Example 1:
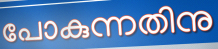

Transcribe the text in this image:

പോകുന്നതിനു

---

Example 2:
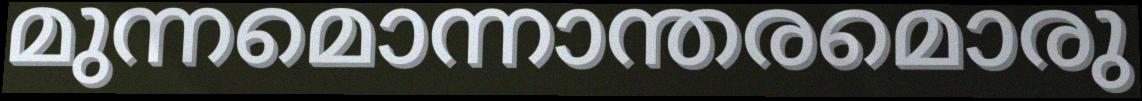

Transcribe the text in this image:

മുന്നമൊന്നാന്തരമൊരു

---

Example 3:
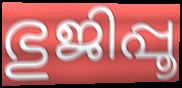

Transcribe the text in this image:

ഭുജിപ്പൂ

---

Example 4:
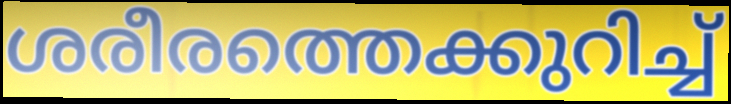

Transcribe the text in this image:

ശരീരത്തെക്കുറിച്ച്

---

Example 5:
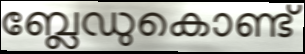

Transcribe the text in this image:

ബ്ലേഡുകൊണ്ട്